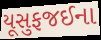
યૂસુફજઈના